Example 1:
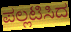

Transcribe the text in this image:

ಪಲ್ಲಟಿಸಿದ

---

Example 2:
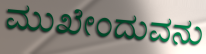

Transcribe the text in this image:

ಮುಖೇಂದುವನು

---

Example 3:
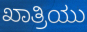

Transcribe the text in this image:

ಖಾತ್ರಿಯು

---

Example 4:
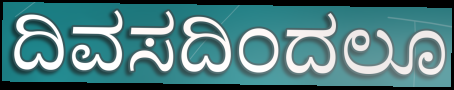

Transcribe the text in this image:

ದಿವಸದಿಂದಲೂ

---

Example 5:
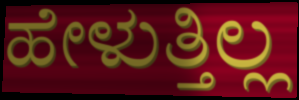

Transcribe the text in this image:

ಹೇಳುತ್ತಿಲ್ಲ